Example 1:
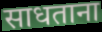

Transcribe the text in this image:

साधताना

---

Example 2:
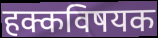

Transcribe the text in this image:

हक्कविषयक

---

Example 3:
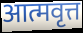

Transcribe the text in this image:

आत्मवृत्त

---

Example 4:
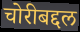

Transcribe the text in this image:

चोरीबद्दल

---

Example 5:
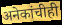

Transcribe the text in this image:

अनेकांचीही